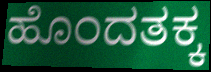
ಹೊಂದತಕ್ಕ